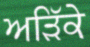
ਅੜਿੱਕੇ